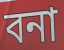
বনা